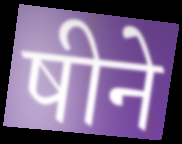
षीने